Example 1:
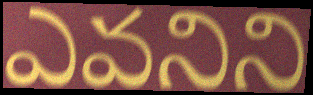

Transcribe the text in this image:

ఎవనిని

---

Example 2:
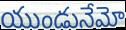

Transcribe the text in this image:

యుండునేమో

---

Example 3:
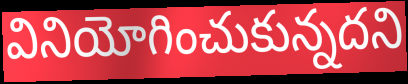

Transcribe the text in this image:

వినియోగించుకున్నదని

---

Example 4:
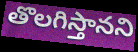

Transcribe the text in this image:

తొలగిస్తానని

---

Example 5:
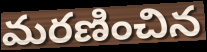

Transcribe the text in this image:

మరణించిన